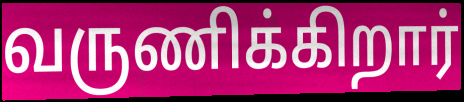
வருணிக்கிறார்